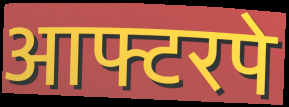
आफ्टरपे